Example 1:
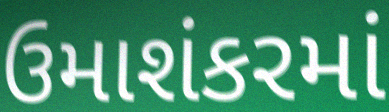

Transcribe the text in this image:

ઉમાશંકરમાં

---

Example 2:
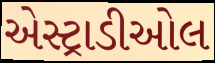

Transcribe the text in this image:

એસ્ટ્રાડીઓલ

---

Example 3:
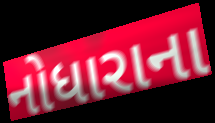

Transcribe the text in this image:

નોધારાના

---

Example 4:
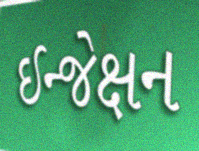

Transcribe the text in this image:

ઈન્જેક્ષન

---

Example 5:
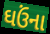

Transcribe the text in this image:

ઘઉંના